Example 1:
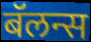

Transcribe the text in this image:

बॅलन्स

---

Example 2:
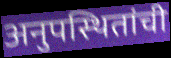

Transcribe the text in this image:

अनुपस्थितांची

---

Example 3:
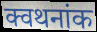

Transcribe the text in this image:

क्वथनांक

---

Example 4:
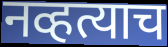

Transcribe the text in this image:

नव्हत्याच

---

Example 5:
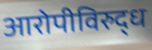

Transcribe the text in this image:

आरोपीविरुद्ध